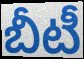
బీటీ